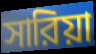
সারিয়া